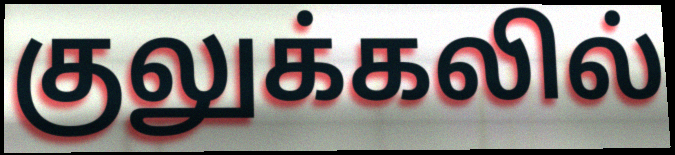
குலுக்கலில்